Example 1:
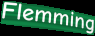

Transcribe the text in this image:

Flemming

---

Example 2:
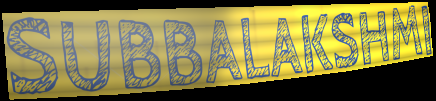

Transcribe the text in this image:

SUBBALAKSHMI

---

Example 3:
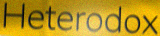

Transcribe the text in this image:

Heterodox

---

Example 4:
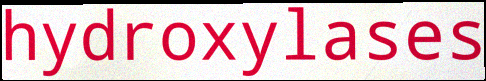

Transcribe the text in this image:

hydroxylases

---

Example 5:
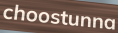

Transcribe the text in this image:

choostunna